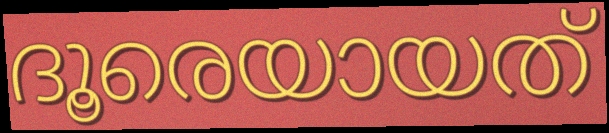
ദൂരെയായത്